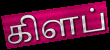
கிளப்